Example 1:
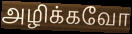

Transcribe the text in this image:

அழிக்கவோ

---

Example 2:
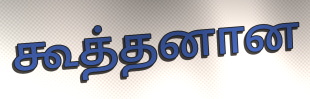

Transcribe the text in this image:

கூத்தனான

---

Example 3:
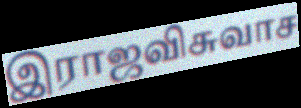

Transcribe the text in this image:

இராஜவிசுவாச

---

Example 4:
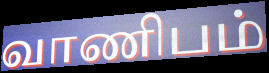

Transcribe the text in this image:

வாணிபம்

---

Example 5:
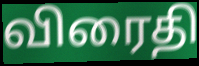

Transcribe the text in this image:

விரைதி